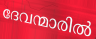
ദേവന്മാരിൽ